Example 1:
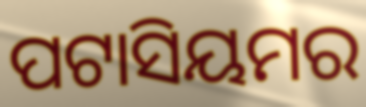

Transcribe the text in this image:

ପଟାସିୟମର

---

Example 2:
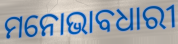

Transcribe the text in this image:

ମନୋଭାବଧାରୀ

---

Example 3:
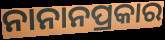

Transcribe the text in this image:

ନାନାନପ୍ରକାର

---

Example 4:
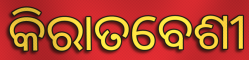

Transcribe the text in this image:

କିରାତବେଶୀ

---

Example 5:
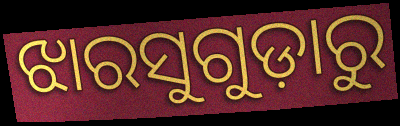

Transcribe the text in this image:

ଝାରସୁଗୁଡ଼ାରୁ